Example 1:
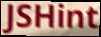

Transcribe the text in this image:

JSHint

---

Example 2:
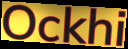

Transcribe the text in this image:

Ockhi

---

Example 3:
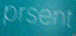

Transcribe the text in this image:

prsent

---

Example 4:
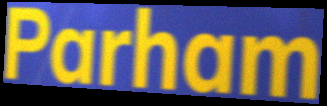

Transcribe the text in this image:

Parham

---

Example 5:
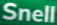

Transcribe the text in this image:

Snell